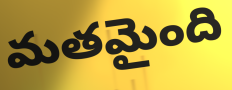
మతమైంది